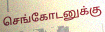
செங்கோடனுக்கு